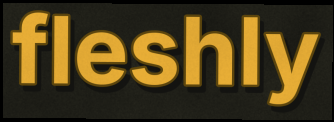
fleshly